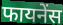
फायनेंस